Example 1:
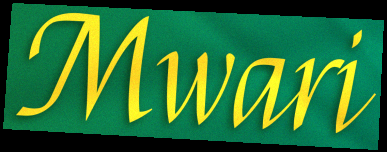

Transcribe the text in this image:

Mwari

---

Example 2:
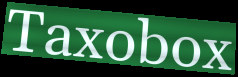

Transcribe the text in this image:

Taxobox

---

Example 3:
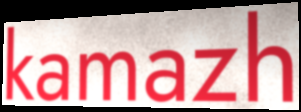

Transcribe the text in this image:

kamazh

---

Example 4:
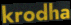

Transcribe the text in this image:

krodha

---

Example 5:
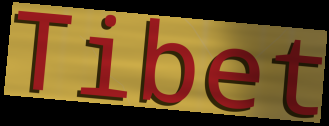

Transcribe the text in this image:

Tibet